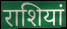
राशियां